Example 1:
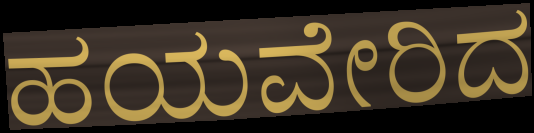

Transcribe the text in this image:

ಹಯವೇರಿದ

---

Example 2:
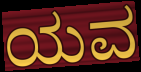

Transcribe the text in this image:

ಯವ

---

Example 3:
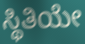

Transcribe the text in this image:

ಸ್ಥಿತಿಯೇ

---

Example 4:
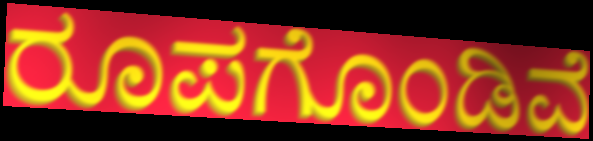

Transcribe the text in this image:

ರೂಪಗೊಂಡಿವೆ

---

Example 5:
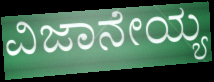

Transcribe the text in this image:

ವಿಜಾನೇಯ್ಯ